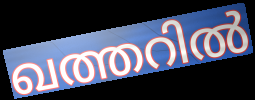
ഖത്തറിൽ